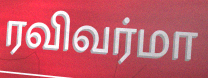
ரவிவர்மா